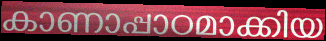
കാണാപ്പാഠമാക്കിയ